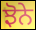
ਝੋਨੇ